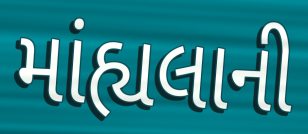
માંહ્યલાની